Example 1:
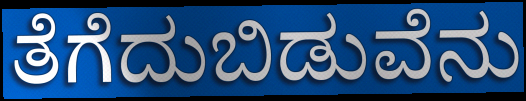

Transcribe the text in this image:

ತೆಗೆದುಬಿಡುವೆನು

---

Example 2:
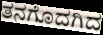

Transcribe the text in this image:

ತನಗೊದಗಿದ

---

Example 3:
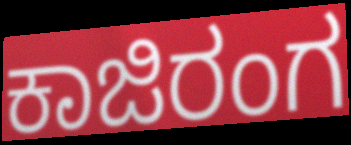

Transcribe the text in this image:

ಕಾಜಿರಂಗ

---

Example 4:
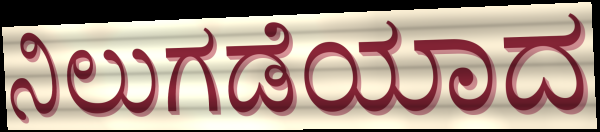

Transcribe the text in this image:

ನಿಲುಗಡೆಯಾದ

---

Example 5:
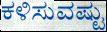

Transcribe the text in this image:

ಕಳಿಸುವಷ್ಟು